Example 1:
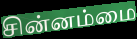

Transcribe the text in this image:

சின்னம்மை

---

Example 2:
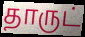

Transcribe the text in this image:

தாருட்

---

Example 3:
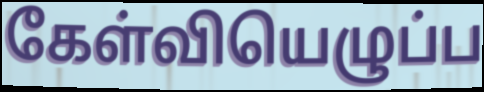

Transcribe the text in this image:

கேள்வியெழுப்ப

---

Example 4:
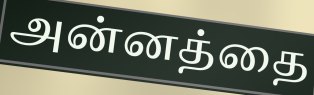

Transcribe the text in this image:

அன்னத்தை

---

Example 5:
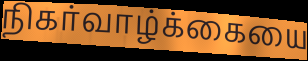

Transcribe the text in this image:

நிகர்வாழ்க்கையை